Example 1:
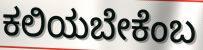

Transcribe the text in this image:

ಕಲಿಯಬೇಕೆಂಬ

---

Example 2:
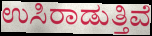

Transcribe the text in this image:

ಉಸಿರಾಡುತ್ತಿವೆ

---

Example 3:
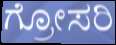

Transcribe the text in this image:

ಗ್ರೋಸರಿ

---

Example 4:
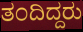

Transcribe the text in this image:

ತಂದಿದ್ದರು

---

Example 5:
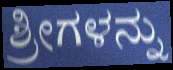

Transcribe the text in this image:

ಶ್ರೀಗಳನ್ನು